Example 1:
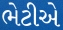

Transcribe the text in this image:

ભેટીએ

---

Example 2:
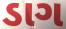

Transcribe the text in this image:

ડાગ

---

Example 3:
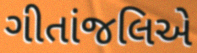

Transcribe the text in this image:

ગીતાંજલિએ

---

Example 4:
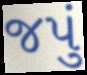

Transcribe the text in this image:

જપું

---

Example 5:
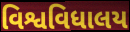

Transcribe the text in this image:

વિશ્વવિધાલય